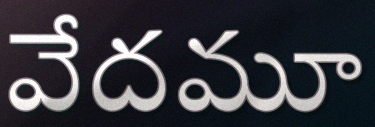
వేదమూ